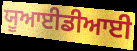
ਯੂਆਈਡੀਆਈ